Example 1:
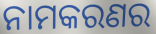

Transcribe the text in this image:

ନାମକରଣର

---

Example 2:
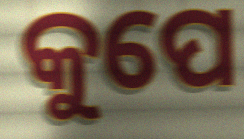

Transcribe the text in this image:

କୁପେ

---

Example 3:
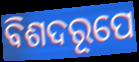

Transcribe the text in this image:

ବିଶଦରୂପେ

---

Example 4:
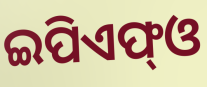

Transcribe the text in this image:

ଇପିଏଫ୍ଓ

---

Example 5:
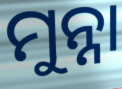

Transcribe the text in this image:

ମୁନ୍ନା